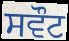
ਸਵੌਟ